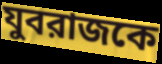
যুবরাজকে